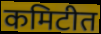
कमिटीत